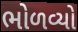
ભોળવ્યો